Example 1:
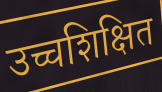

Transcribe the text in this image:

उच्चशिक्षित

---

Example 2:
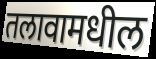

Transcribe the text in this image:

तलावामधील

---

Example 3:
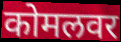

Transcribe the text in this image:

कोमलवर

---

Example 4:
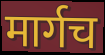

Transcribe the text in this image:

मार्गच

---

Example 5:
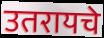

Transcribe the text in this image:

उतरायचे